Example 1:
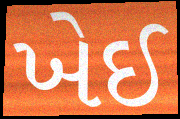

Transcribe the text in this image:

ખેઈ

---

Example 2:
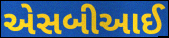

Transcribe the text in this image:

એસબીઆઈ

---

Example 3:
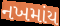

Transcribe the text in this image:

નખમાંય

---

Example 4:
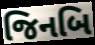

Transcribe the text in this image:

જિનબિ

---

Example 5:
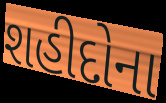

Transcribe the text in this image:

શહીદોના